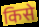
किसे